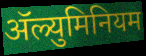
ॲल्युमिनियम